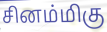
சினம்மிகு